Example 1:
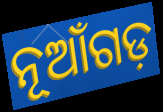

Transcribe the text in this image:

ନୂଆଁଗଡ଼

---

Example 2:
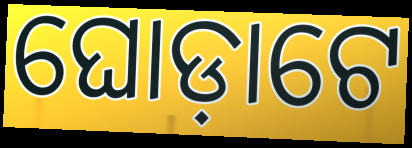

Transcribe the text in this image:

ଘୋଡ଼ାଟେ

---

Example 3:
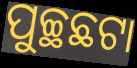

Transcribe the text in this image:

ପୁଚ୍ଛଛଟା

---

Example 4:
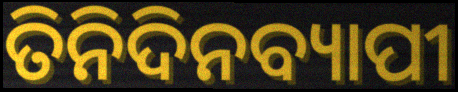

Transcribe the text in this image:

ତିନିଦିନବ୍ୟାପୀ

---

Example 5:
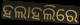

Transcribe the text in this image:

ହଲାହଲିରେ